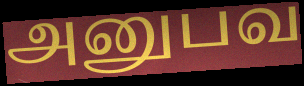
அனுபவ